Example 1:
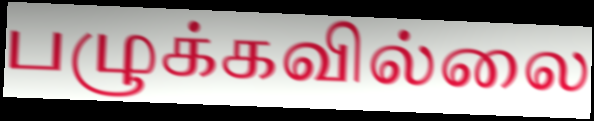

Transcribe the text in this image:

பழுக்கவில்லை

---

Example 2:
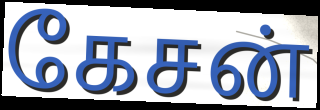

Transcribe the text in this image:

கேசன்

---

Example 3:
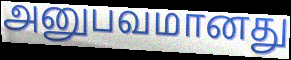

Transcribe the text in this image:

அனுபவமானது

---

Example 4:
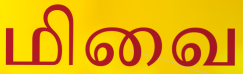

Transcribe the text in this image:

மிவை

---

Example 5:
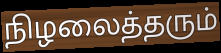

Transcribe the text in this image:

நிழலைத்தரும்